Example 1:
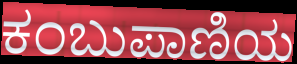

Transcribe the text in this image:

ಕಂಬುಪಾಣಿಯ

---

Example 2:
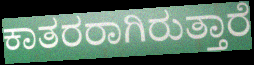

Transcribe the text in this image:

ಕಾತರರಾಗಿರುತ್ತಾರೆ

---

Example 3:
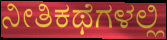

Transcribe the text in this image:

ನೀತಿಕಥೆಗಳಲ್ಲಿ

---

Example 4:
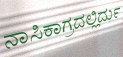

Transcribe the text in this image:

ನಾಸಿಕಾಗ್ರದಲ್ಲಿರ್ದು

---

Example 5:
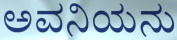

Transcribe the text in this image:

ಅವನಿಯನು